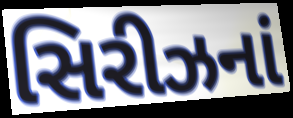
સિરીઝનાં